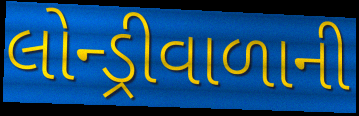
લોન્ડ્રીવાળાની